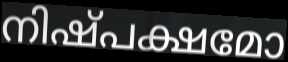
നിഷ്പക്ഷമോ